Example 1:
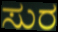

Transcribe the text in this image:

ಸುರ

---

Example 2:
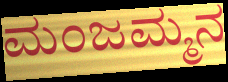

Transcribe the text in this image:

ಮಂಜಮ್ಮನ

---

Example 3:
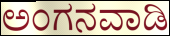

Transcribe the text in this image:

ಅಂಗನವಾಡಿ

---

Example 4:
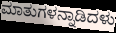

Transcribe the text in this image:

ಮಾತುಗಳನ್ನಾಡಿದಳು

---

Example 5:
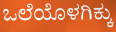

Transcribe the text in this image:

ಒಲೆಯೊಳಗಿಕ್ಕು